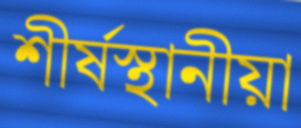
শীর্ষস্থানীয়া